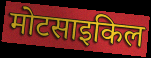
मोटसाइकिल